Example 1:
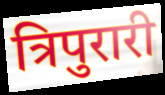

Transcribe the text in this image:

त्रिपुरारी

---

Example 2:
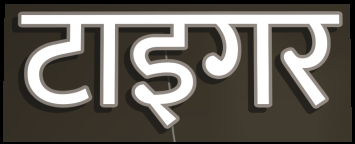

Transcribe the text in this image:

टाइगर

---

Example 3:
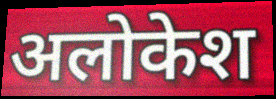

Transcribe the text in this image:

अलोकेश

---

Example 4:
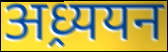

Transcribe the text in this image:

अ्रध्ययन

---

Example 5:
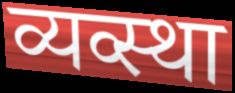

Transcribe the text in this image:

व्यव्स्था